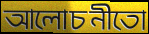
আলোচনীতো